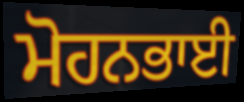
ਮੋਹਨਭਾਈ